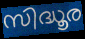
സിദ്ധൂര